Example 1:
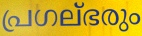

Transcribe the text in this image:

പ്രഗല്ഭരും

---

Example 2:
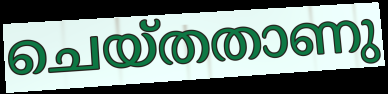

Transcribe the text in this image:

ചെയ്തതാണു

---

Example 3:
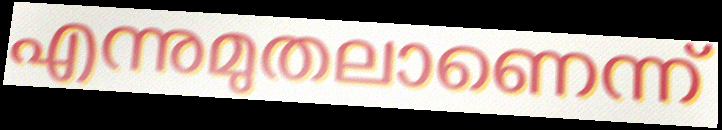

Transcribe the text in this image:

എന്നുമുതലാണെന്ന്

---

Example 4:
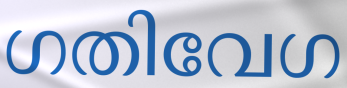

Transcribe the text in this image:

ഗതിവേഗ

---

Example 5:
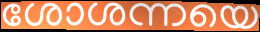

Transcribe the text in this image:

ശോശന്നയെ